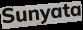
Sunyata